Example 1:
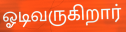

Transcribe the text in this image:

ஓடிவருகிறார்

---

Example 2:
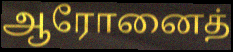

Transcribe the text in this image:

ஆரோனைத்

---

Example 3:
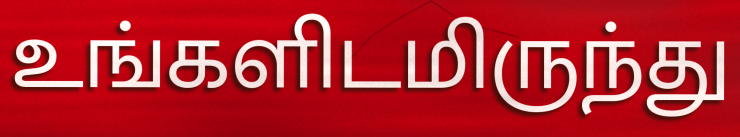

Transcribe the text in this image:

உங்களிடமிருந்து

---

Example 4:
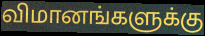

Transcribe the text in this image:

விமானங்களுக்கு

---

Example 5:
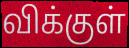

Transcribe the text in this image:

விக்குள்